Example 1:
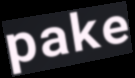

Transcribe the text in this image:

pake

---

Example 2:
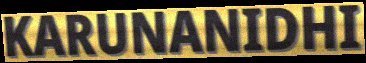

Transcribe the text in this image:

KARUNANIDHI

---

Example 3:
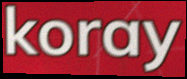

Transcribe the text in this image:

koray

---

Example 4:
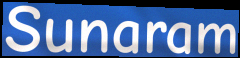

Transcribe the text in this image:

Sunaram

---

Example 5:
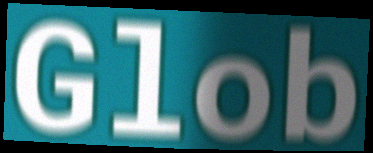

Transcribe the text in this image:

Glob